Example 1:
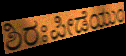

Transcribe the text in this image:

ಶಿರಃಪೀಡೆಯುಂ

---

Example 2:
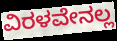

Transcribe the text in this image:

ವಿರಳವೇನಲ್ಲ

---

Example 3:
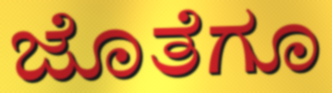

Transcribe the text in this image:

ಜೊತೆಗೂ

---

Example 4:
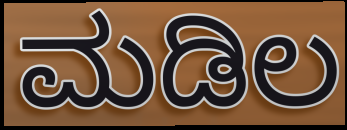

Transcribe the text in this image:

ಮಡಿಲ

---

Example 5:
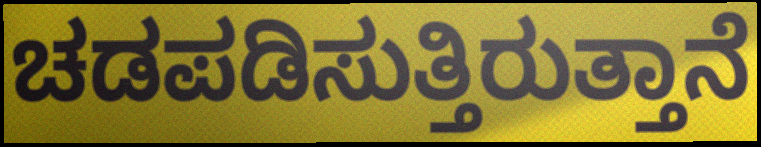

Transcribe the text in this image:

ಚಡಪಡಿಸುತ್ತಿರುತ್ತಾನೆ